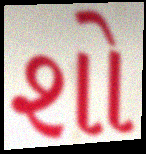
શો